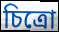
চিত্রো